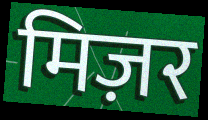
मिज़र